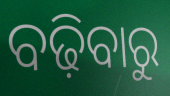
ବଢ଼ିବାରୁ